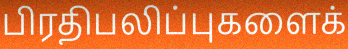
பிரதிபலிப்புகளைக்